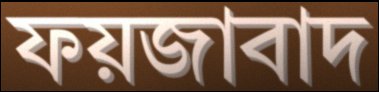
ফয়জাবাদ